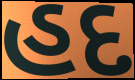
હદ